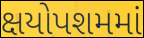
ક્ષયોપશમમાં